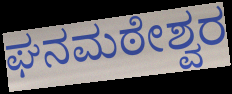
ಘನಮಠೇಶ್ವರ